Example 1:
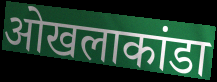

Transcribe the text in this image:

ओखलाकांडा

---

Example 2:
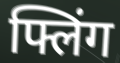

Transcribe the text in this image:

फ्लिंग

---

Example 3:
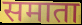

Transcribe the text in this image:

समाता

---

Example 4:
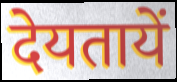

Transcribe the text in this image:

देयतायें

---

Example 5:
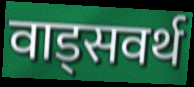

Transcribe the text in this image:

वाड्सवर्थ